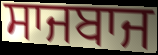
ਸਾਜਬਾਜ